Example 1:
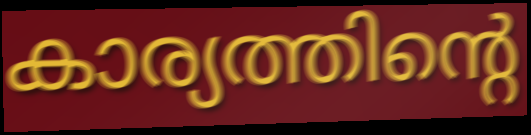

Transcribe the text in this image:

കാര്യത്തിന്റെ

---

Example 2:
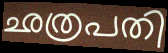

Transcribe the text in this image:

ഛത്രപതി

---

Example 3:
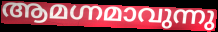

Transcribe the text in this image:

ആമഗ്നമാവുന്നു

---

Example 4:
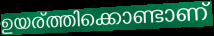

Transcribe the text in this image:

ഉയര്ത്തിക്കൊണ്ടാണ്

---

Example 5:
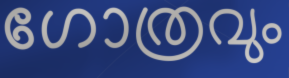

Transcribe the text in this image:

ഗോത്രവും